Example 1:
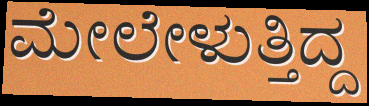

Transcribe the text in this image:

ಮೇಲೇಳುತ್ತಿದ್ದ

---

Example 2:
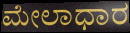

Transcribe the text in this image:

ಮೇಲಾಧಾರ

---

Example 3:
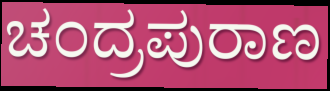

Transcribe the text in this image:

ಚಂದ್ರಪುರಾಣ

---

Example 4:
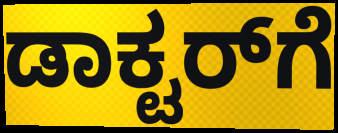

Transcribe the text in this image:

ಡಾಕ್ಟರ್‌ಗೆ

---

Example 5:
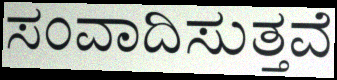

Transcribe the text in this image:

ಸಂವಾದಿಸುತ್ತವೆ